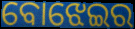
ବୋଝେଇର